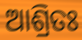
ଆଶ୍ରିତଃ